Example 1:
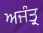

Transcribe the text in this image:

ਅਜੰਤ੍ਰ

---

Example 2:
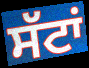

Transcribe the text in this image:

ਸੱਟਾਂ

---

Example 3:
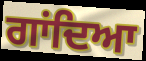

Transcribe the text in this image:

ਗਾਂਦਿਆ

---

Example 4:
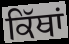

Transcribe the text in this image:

ਕਿੱਥਾਂ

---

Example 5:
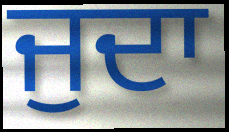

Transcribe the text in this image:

ਜੁਦਾ